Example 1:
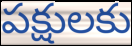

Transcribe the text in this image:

పక్షులకు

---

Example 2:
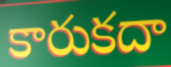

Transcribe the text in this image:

కారుకదా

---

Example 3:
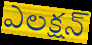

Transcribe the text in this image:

ఎలక్షన్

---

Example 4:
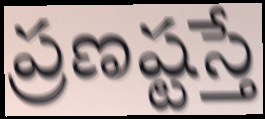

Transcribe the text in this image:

ప్రణష్టస్తే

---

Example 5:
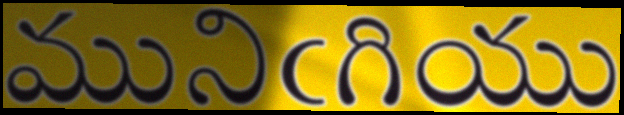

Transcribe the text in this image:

మునిఁగియు